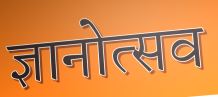
ज्ञानोत्सव